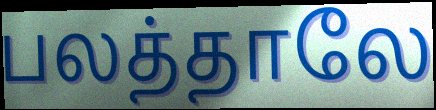
பலத்தாலே